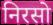
निरसो